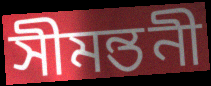
সীমন্তনী